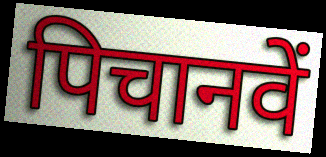
पिचानवें